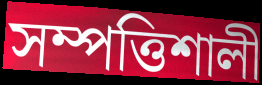
সম্পত্তিশালী